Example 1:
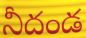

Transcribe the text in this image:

నీదండ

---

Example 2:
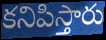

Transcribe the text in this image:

కనిపిస్తారు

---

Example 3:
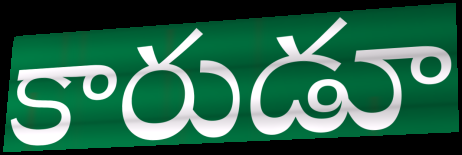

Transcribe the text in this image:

కారుడూ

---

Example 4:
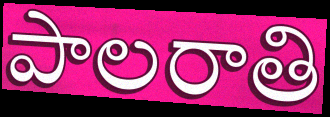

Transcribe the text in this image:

పాలరాతి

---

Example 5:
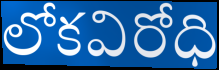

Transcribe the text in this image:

లోకవిరోధి